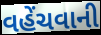
વહેંચવાની